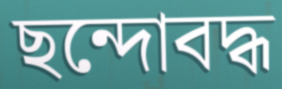
ছন্দোবদ্ধ